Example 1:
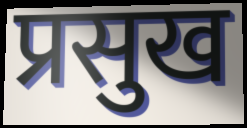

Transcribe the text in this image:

प्रसुख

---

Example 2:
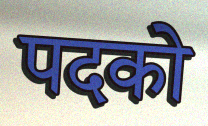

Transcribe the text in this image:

पदको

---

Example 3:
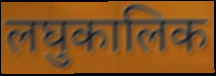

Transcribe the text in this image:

लघुकालिक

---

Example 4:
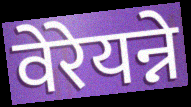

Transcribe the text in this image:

वेरेयन्ने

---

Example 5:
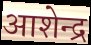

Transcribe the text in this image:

आशेन्द्र